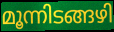
മൂന്നിടങ്ങഴി